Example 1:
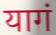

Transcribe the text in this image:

यागं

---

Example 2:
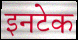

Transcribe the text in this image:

इनटेक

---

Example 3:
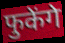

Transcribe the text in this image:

फुकेंगे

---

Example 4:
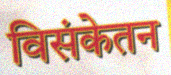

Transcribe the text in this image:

विसंकेतन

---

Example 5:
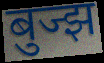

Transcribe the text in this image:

बुज्झ